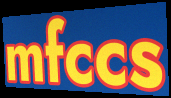
mfccs